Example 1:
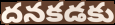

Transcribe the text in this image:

దనకడకు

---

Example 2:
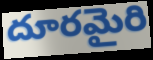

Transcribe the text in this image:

దూరమైరి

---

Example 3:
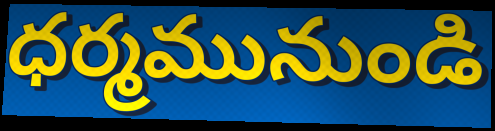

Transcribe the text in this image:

ధర్మమునుండి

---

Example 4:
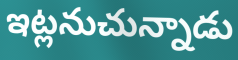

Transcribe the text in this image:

ఇట్లనుచున్నాడు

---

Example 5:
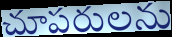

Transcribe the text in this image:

చూపరులను